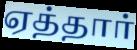
ஏத்தார்